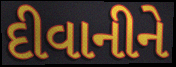
દીવાનીને